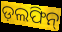
ଡ଼ଲଫିନ୍